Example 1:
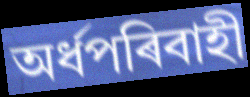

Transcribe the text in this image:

অৰ্ধপৰিবাহী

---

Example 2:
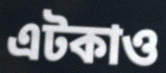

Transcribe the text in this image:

এটকাও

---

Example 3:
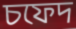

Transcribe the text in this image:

চফেদ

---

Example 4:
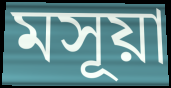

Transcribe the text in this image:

মসূয়া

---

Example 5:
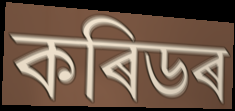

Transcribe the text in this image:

কৰিডৰ